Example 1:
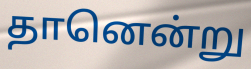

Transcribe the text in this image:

தானென்று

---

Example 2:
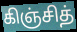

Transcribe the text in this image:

கிஞ்சித்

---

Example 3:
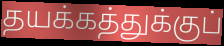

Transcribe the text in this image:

தயக்கத்துக்குப்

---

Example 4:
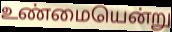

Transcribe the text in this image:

உண்மையென்று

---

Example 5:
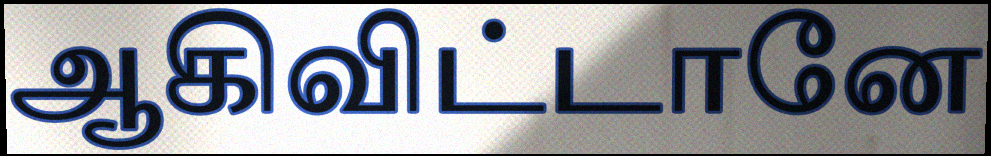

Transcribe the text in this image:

ஆகிவிட்டானே